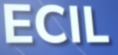
ECIL